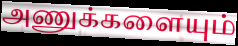
அணுக்களையும்